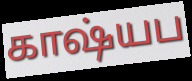
காஷ்யப